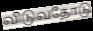
விடுவதோடு